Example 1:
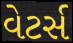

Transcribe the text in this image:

વેટર્સ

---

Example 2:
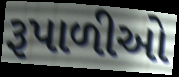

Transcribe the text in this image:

રૂપાળીઓ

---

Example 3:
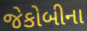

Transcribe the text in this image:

જેકોબીના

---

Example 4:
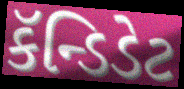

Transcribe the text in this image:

કૅન્ડિડેટ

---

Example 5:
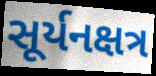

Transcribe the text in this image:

સૂર્યનક્ષત્ર